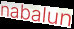
nabalun